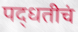
पद्धतीचं